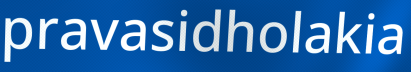
pravasidholakia